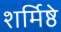
शर्मिष्ठे